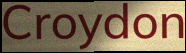
Croydon